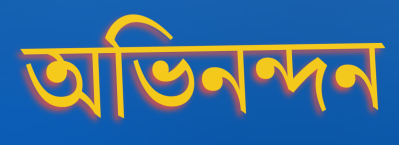
অভিনন্দন